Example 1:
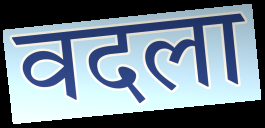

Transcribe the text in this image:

वदला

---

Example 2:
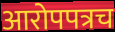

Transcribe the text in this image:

आरोपपत्रच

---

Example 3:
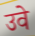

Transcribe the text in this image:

उवे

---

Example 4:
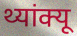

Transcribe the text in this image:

थ्यांक्यू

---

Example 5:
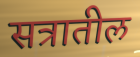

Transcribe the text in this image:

सत्रातील